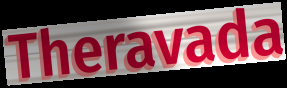
Theravada